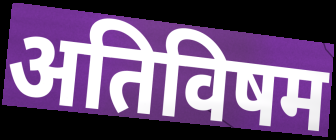
अतिविषम